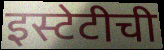
इस्टेटीची